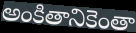
అంకితానికెంతా